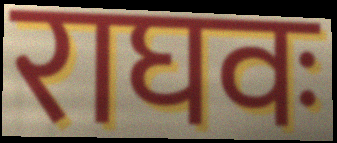
राघवः